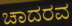
ಚಾದರವ